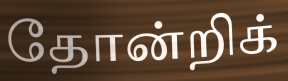
தோன்றிக்